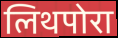
लिथपोरा